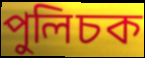
পুলিচক